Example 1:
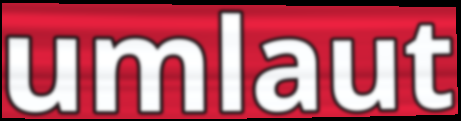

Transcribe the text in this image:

umlaut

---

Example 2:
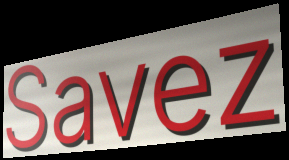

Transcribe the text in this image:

Savez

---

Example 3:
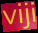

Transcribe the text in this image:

viji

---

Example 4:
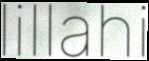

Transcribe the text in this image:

lillahi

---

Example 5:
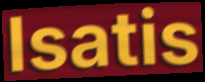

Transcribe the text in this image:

Isatis